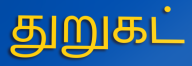
துறுகட்